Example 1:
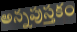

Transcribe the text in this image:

అన్నపుస్తకం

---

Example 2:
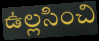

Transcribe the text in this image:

ఉల్లసించి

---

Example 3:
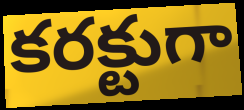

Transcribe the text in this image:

కరక్టుగా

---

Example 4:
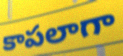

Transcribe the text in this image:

కాపలాగా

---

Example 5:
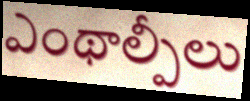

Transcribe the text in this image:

ఎంథాల్పీలు